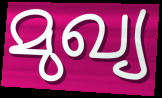
മുഖ്യ